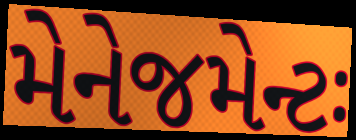
મેનેજમેન્ટઃ